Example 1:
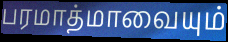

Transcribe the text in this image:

பரமாத்மாவையும்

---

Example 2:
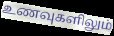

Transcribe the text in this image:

உணவுகளிலும்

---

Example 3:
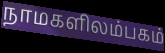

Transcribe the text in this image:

நாமகளிலம்பகம்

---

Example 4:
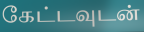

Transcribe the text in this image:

கேட்டவுடன்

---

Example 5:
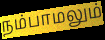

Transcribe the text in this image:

நம்பாமலும்